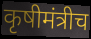
कृषीमंत्रीच